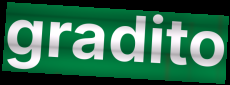
gradito